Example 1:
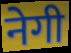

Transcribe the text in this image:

नेगी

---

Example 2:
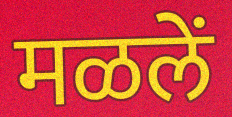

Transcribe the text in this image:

मळलें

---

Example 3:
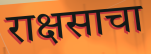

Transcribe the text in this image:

राक्षसाचा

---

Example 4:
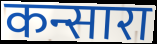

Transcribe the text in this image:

कन्सारा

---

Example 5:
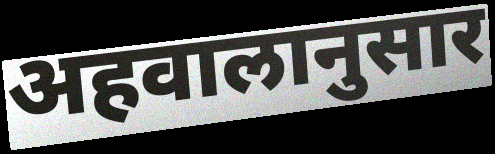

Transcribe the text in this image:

अहवालानुसार